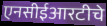
एनसीईआरटीचे